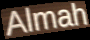
Almah